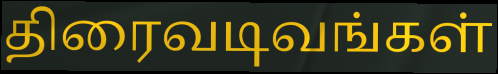
திரைவடிவங்கள்